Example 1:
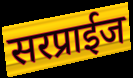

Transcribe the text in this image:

सरप्राईज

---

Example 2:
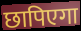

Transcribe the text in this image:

छापिएगा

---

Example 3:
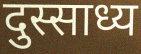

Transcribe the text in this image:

दुस्साध्य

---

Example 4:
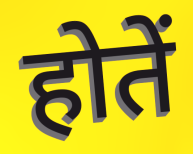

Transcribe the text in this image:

होतें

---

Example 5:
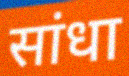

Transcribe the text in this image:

सांधा